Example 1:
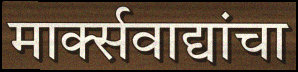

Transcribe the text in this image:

मार्क्‍सवाद्यांचा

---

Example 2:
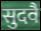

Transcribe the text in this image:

सुदवै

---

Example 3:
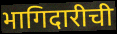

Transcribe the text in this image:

भागिदारीची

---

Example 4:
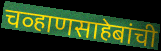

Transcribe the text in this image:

चव्हाणसाहेबांची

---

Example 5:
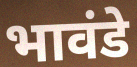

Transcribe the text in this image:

भावंडे